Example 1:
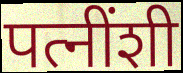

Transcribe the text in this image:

पत्नींशी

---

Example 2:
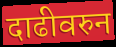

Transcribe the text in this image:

दाढीवरुन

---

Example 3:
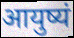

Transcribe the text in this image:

आयुष्यं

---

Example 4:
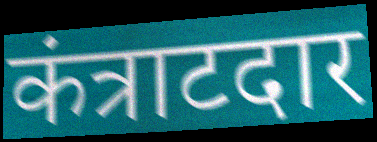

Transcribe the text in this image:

कंत्राटदार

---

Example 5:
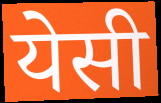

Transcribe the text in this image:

येसी